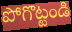
పోగొట్టండి